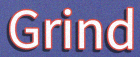
Grind